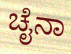
ಚೈನಾ